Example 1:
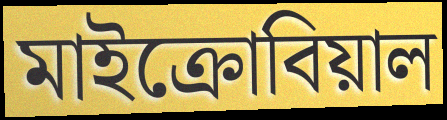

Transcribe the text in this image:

মাইক্রোবিয়াল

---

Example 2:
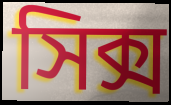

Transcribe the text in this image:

সিক্স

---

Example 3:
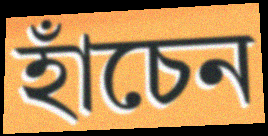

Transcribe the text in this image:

হাঁচেন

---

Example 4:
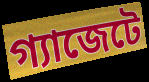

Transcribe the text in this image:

গ্যাজেটে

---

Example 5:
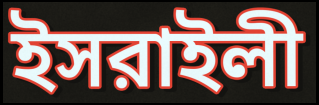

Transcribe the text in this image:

ইসরাইলী